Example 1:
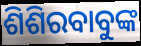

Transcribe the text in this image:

ଶିଶିରବାବୁଙ୍କ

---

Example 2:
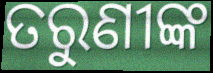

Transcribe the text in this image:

ତରୁଣୀଙ୍କ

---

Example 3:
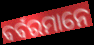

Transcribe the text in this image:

ବର୍ବରମାନେ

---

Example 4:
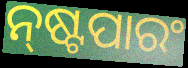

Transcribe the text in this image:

ନ୍‌ଷ୍ଟପାରଂ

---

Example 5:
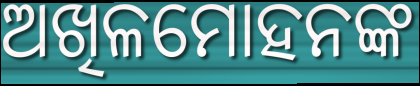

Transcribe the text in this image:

ଅଖିଳମୋହନଙ୍କ